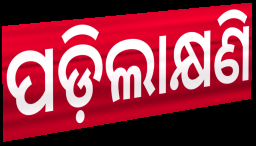
ପଡ଼ିଲାକ୍ଷଣି